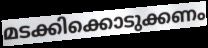
മടക്കിക്കൊടുക്കണം